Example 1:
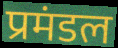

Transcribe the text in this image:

प्रमंडल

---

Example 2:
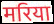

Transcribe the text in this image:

मरिया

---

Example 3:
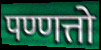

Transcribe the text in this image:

पण्णत्तो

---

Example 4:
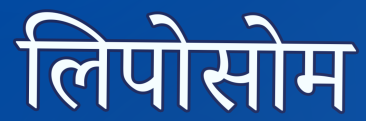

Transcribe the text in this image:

लिपोसोम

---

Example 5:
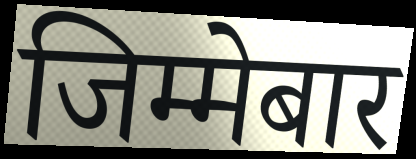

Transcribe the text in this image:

जिम्मेबार